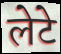
लेटे